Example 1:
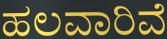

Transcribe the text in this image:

ಹಲವಾರಿವೆ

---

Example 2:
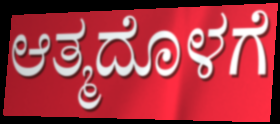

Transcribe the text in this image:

ಆತ್ಮದೊಳಗೆ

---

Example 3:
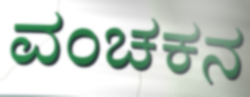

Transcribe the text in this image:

ವಂಚಕನ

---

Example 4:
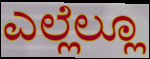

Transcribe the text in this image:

ಎಲ್ಲೆಲ್ಲೂ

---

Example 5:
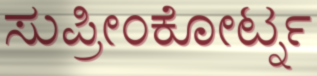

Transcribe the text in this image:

ಸುಪ್ರೀಂಕೋರ್ಟ್ನ